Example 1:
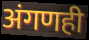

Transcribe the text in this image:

अंगणही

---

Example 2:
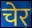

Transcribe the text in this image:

चेर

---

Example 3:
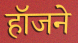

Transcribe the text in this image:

हॉजने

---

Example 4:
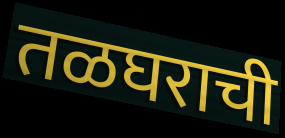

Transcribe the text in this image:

तळघराची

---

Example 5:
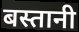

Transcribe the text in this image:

बस्तानी